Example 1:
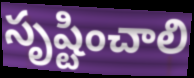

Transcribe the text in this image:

సృష్టించాలి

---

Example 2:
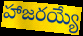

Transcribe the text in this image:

హాజరయ్యే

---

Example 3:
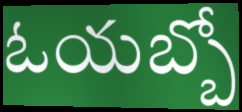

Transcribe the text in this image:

ఓయబ్బో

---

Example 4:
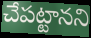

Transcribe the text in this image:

చేపట్టానని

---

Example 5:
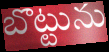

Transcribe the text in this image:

బొట్టును